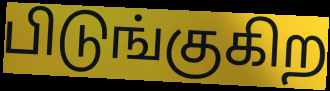
பிடுங்குகிற